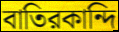
বাতিরকান্দি